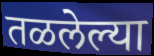
तळलेल्या